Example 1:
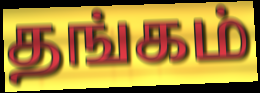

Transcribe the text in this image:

தங்கம்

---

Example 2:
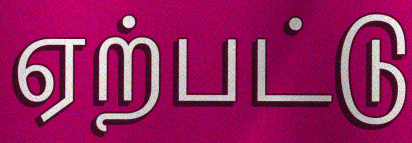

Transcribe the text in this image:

ஏற்பட்டு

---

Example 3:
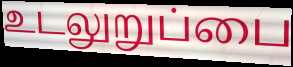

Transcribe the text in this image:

உடலுறுப்பை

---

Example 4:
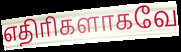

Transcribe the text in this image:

எதிரிகளாகவே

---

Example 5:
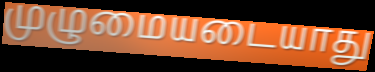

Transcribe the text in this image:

முழுமையடையாது